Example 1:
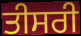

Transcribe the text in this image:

ਤੀਸਰੀ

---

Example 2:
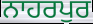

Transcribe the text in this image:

ਨਾਹਰਪੁਰ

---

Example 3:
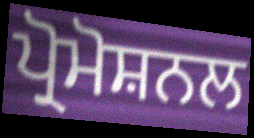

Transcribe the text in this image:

ਪ੍ਰੋਮੋਸ਼ਨਲ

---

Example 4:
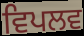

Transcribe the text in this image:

ਵਿਪਲਵ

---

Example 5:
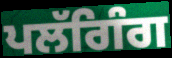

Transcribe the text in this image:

ਪਲੱਗਿੰਗ